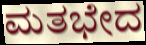
ಮತಭೇದ